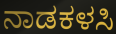
ನಾಡಕಳಸಿ